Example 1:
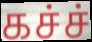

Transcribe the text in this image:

கச்ச்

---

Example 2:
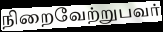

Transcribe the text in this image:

நிறைவேற்றுபவர்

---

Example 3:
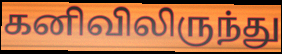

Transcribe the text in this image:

கனிவிலிருந்து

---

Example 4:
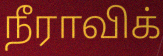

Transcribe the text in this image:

நீராவிக்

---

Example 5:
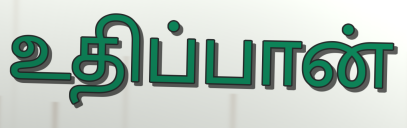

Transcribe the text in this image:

உதிப்பான்